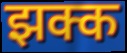
झक्क